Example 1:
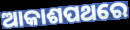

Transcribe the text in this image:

ଆକାଶପଥରେ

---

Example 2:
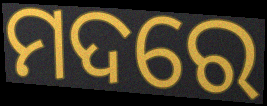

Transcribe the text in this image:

ମଦରେ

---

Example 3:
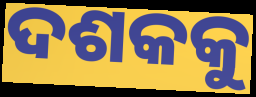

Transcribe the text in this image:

ଦଶକକୁ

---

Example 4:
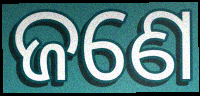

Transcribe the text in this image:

ଜଣେ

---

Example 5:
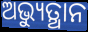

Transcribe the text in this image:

ଅଭ୍ୟୁତ୍ଥାନ